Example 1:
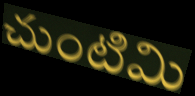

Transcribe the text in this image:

చుంటిమి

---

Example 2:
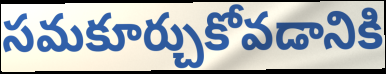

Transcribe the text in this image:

సమకూర్చుకోవడానికి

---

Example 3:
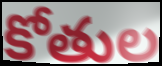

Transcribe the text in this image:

కోతుల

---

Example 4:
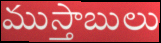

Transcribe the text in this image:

ముస్తాబులు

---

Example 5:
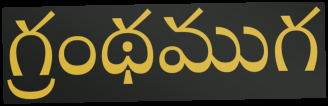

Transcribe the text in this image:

గ్రంథముగ